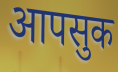
आपसुक